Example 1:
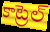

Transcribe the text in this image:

కాట్రెల్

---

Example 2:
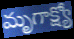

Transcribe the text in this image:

మృగాక్ష్యో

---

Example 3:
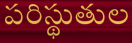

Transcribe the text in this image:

పరిస్థుతుల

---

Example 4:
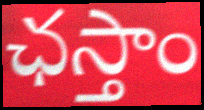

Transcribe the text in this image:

ఛస్తాం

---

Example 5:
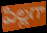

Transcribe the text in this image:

పిల్లగా